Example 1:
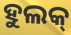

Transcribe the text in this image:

ହୁଲକ୍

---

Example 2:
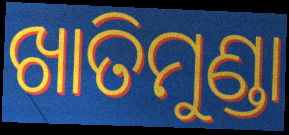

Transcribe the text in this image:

ଖାତିମୁଣ୍ଡା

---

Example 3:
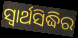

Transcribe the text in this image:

ସ୍ଵାର୍ଥସିଦ୍ଧିର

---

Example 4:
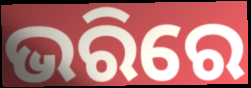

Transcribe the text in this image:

ଭରିରେ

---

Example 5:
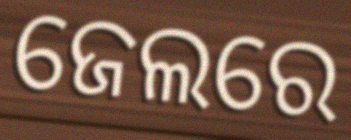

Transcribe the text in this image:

ଜେଲରେ